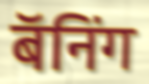
बॅनिंग